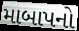
માબાપનો